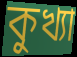
কুখ্যা